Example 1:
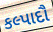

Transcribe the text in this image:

કલ્પાદૌ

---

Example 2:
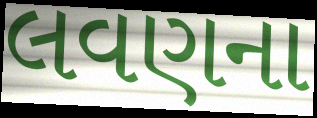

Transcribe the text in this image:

લવણના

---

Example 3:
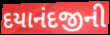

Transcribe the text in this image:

દયાનંદજીની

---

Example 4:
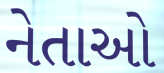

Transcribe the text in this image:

નેતાઓ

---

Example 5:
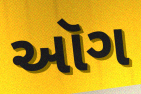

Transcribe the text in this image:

ઑગ